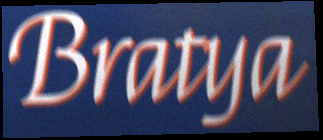
Bratya